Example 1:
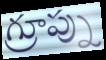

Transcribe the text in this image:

గ్రూప్ను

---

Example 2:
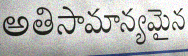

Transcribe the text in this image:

అతిసామాన్యమైన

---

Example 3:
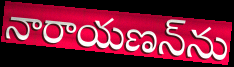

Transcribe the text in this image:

నారాయణన్‌ను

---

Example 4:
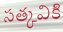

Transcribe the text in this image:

సత్కవికి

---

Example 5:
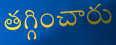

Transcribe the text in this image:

తగ్గించారు